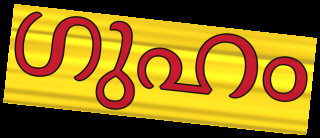
ഗുഹം